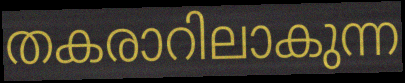
തകരാറിലാകുന്ന